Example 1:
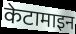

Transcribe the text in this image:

केटामाइन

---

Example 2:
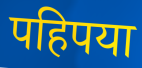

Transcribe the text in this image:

पहिपया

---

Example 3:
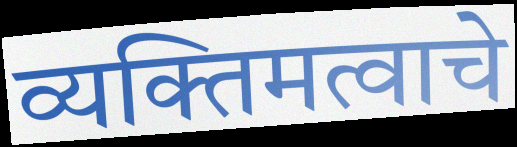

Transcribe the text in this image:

व्यक्तिमत्वाचे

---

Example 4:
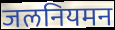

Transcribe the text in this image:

जलनियमन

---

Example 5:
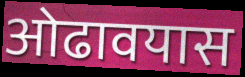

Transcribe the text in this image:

ओढावयास